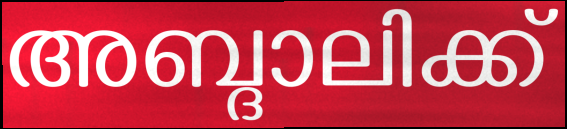
അബ്ദാലിക്ക്